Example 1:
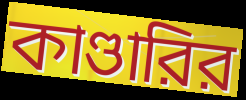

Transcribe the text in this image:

কাণ্ডারির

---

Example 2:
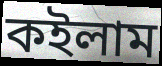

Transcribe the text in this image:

কইলাম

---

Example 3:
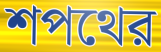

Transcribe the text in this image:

শপথের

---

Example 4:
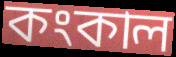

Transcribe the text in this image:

কংকাল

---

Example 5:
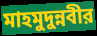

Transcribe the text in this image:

মাহমুদুন্নবীর